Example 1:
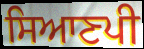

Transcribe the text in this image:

ਸਿਆਣਪੀ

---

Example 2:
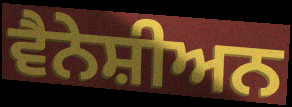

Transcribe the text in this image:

ਵੈਨੇਸ਼ੀਅਨ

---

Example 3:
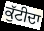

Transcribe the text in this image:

ਕੁੱਟੀਦਾ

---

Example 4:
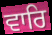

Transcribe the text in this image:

ਵਾਰਿ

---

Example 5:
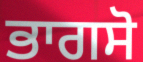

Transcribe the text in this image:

ਭਾਗਸੋ